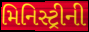
મિનિસ્ટ્રીની